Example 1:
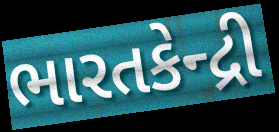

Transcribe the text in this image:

ભારતકેન્દ્રી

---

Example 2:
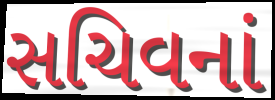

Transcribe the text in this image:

સચિવનાં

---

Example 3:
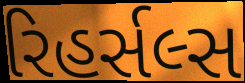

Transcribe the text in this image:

રિહર્સલ્સ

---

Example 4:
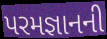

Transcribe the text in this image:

પરમજ્ઞાનની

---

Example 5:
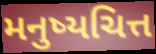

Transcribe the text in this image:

મનુષ્યચિત્ત